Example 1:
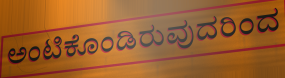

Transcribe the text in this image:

ಅಂಟಿಕೊಂಡಿರುವುದರಿಂದ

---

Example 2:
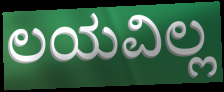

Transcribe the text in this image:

ಲಯವಿಲ್ಲ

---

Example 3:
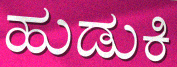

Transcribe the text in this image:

ಹುಡುಕಿ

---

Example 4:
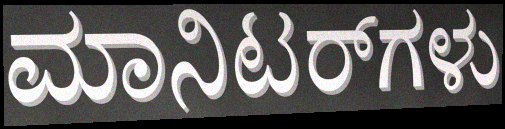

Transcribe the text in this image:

ಮಾನಿಟರ್‌ಗಳು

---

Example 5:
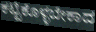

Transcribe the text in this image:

ಕಟ್ಟಿಕೊಳ್ಳಬೇಕಾದ